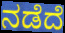
ನಡೆದೆ